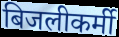
बिजलीकर्मी